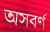
অসবর্ণ